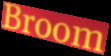
Broom